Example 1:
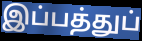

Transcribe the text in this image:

இப்பத்துப்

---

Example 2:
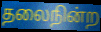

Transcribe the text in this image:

தலைநின்ற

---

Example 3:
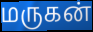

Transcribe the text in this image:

மருகன்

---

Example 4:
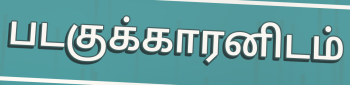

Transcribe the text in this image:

படகுக்காரனிடம்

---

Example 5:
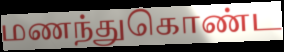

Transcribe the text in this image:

மணந்துகொண்ட